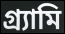
গ্র্যামি